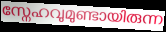
സ്നേഹവുമുണ്ടായിരുന്ന